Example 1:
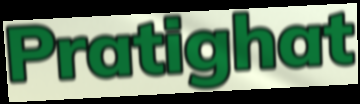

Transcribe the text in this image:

Pratighat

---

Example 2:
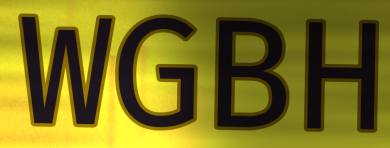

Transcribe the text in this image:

WGBH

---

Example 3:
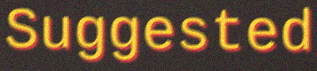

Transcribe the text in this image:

Suggested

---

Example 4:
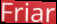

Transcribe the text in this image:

Friar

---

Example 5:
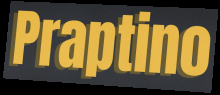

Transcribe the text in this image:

Praptino